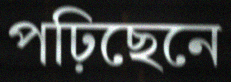
পঢ়িছেনে